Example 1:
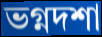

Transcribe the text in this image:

ভগ্নদশা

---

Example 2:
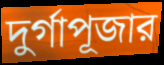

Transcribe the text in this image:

দুর্গাপূজার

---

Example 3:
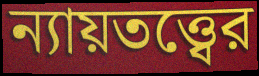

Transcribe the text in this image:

ন্যায়তত্ত্বের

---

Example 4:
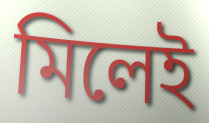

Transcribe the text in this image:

মিলেই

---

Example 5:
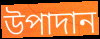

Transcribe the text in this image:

উপাদান